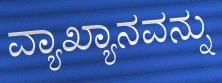
ವ್ಯಾಖ್ಯಾನವನ್ನು